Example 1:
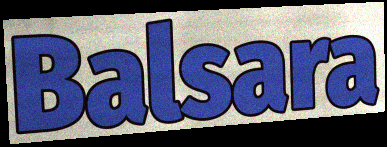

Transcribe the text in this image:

Balsara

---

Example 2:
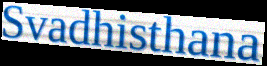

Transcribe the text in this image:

Svadhisthana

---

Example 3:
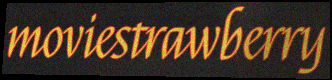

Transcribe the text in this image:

moviestrawberry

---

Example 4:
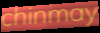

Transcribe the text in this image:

chinmay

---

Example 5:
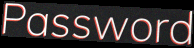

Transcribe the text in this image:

Password